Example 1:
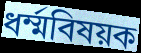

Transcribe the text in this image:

ধর্ম্মবিষয়ক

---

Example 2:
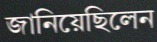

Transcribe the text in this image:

জানিয়েছিলেন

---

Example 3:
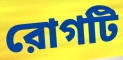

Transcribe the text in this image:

রোগটি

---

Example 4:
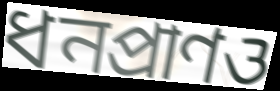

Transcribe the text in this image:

ধনপ্রাণও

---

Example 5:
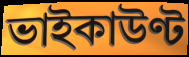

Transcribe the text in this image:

ভাইকাউণ্ট